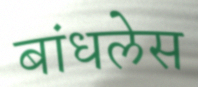
बांधलेस